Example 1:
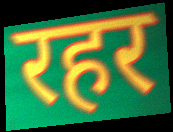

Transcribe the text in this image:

रहर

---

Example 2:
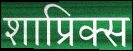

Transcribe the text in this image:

शाप्रिक्स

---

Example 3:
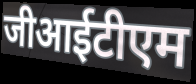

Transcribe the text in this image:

जीआईटीएम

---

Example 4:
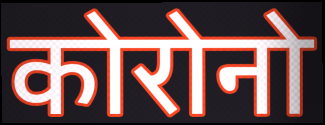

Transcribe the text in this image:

कोरोनो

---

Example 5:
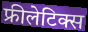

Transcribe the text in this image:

फ्रीलेटिक्स